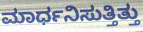
ಮಾರ್ಧನಿಸುತ್ತಿತ್ತು